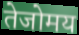
तेजोमय